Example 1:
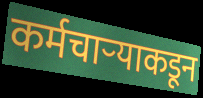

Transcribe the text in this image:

कर्मचाऱ्याकडून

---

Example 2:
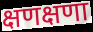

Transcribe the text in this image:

क्षणक्षणा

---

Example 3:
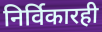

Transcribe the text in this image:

निर्विकारही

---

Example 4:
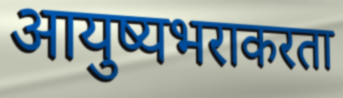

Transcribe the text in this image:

आयुष्यभराकरता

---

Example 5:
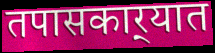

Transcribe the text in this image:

तपासकार्यात